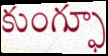
కుంగ్ఫూ